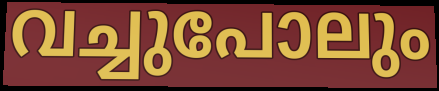
വച്ചുപോലും